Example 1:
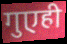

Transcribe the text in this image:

गुएही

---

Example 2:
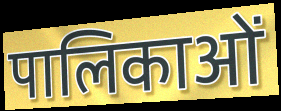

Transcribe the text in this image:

पालिकाओं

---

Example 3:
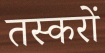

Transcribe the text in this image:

तस्करों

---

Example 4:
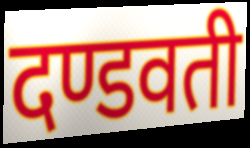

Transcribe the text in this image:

दण्डवती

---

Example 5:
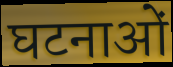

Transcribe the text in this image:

घटनाओं